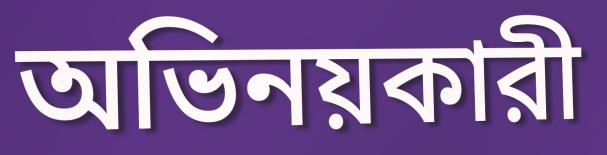
অভিনয়কারী